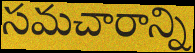
సమచారాన్ని